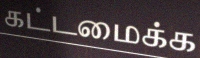
கட்டமைக்க